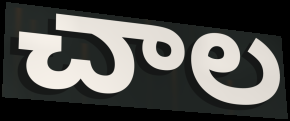
చాల